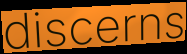
discerns